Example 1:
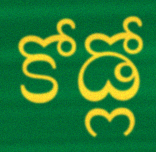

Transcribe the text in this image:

కోడ్లో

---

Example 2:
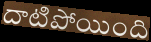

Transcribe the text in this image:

దాటిపోయింది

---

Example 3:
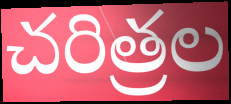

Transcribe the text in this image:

చరిత్రల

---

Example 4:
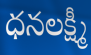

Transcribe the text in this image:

ధనలక్ష్మీ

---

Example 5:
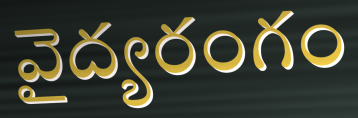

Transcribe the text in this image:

వైద్యరంగం